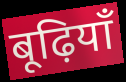
बूढ़ियाँ